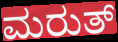
ಮರುತ್